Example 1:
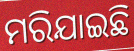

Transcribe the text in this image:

ମରିଯାଇଛି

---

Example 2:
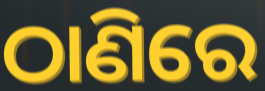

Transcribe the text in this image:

ଠାଣିରେ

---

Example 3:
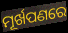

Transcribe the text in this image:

ମୂର୍ଖପଣରେ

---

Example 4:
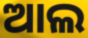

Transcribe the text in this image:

ଆଲ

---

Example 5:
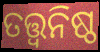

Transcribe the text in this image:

ତତ୍ତ୍ୱନିଷ୍ଠ